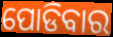
ପୋଡିବାର